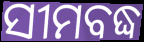
ସୀମବଦ୍ଧ